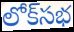
లోక్‌సభ